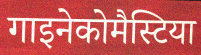
गाइनेकोमैस्टिया